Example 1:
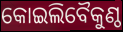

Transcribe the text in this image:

କୋଇଲିବୈକୁଣ୍ଠ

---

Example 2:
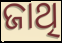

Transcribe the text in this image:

ଜାଥି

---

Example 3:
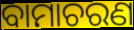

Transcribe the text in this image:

ବାମାଚରଣ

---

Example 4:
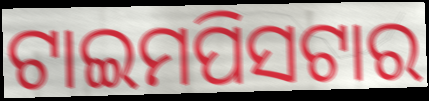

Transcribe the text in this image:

ଟାଇମପିସଟାର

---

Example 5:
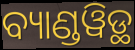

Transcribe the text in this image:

ବ୍ୟାଣ୍ଡୱିଡ୍ଥ